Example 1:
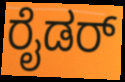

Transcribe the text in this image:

ರೈಡರ್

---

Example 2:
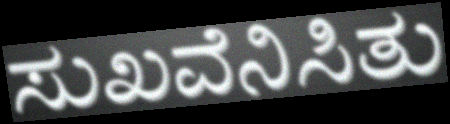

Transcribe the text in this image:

ಸುಖವೆನಿಸಿತು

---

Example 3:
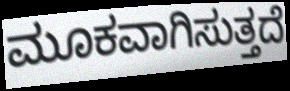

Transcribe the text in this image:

ಮೂಕವಾಗಿಸುತ್ತದೆ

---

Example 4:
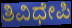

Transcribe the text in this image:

ತಿವಿಧೇಪಿ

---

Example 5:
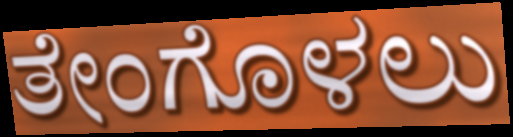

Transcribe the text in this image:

ತೇಂಗೊಳಲು